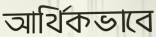
আর্থিকভাবে